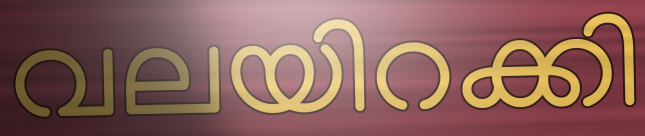
വലയിറക്കി